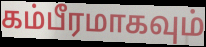
கம்பீரமாகவும்